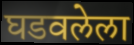
घडवलेला